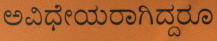
ಅವಿಧೇಯರಾಗಿದ್ದರೂ